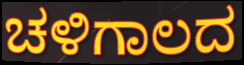
ಚಳಿಗಾಲದ